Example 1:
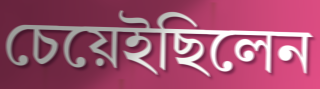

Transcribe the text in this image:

চেয়েইছিলেন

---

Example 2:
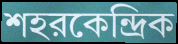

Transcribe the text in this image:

শহরকেন্দ্রিক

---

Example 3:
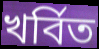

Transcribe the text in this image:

খর্বিত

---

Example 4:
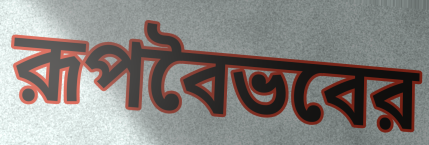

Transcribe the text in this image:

রূপবৈভবের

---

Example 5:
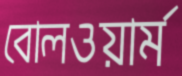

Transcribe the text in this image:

বোলওয়ার্ম